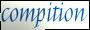
compition